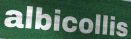
albicollis